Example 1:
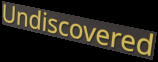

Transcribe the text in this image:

Undiscovered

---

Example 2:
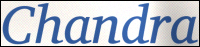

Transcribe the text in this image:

Chandra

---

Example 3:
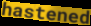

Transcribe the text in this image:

hastened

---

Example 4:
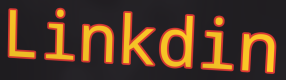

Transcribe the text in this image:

Linkdin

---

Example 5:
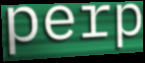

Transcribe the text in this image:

perp